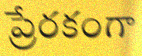
ప్రేరకంగా